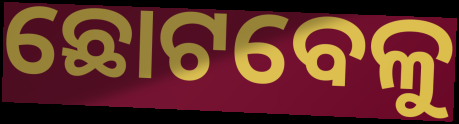
ଛୋଟବେଳୁ